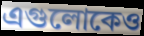
এগুলোকেও